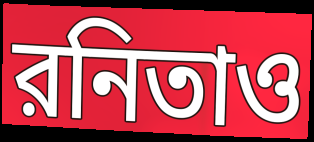
রনিতাও